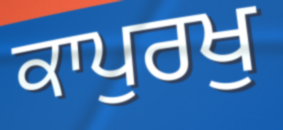
ਕਾਪੁਰਖੁ